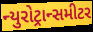
ન્યુરોટ્રાન્સમીટર